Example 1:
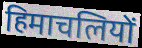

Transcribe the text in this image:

हिमाचलियों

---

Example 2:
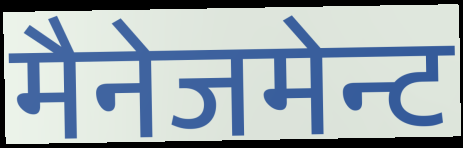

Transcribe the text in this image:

मैनेजमेन्ट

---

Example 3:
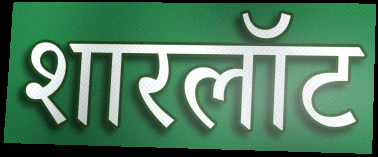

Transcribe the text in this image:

शारलॉट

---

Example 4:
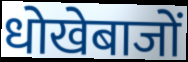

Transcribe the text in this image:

धोखेबाजों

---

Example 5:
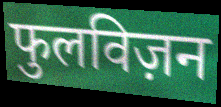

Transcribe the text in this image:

फुलविज़न